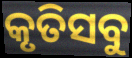
କୃତିସବୁ